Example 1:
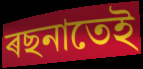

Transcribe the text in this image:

ৰছনাতেই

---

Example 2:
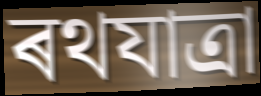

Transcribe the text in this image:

ৰথযাত্ৰা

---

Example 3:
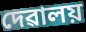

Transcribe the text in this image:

দেৱালয়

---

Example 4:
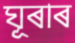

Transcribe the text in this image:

ঘূৰাৰ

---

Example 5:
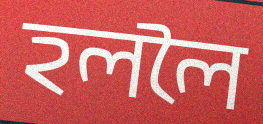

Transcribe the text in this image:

হললৈ